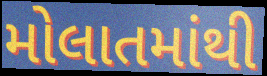
મોલાતમાંથી